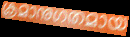
ക്രമാനുഗതമായ